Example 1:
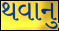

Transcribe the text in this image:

થવાનુ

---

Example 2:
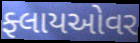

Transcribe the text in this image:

ફ્લાયઓવર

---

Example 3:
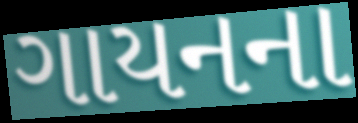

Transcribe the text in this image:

ગાયનના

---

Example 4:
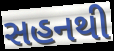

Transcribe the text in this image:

સહનથી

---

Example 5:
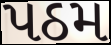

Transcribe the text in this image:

પઠમ